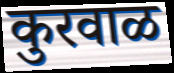
कुरवाळ